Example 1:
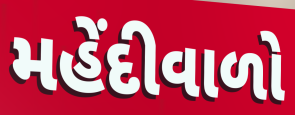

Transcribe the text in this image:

મહેંદીવાળો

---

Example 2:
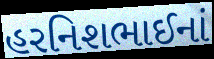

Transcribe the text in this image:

હરનિશભાઈનાં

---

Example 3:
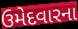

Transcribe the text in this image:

ઉમેદવારના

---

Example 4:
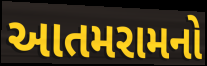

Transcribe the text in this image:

આતમરામનો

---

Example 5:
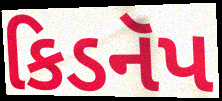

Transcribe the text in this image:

કિડનૅપ